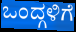
ಒಂದ್ಗಳಿಗೆ